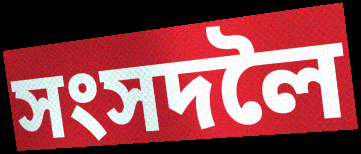
সংসদলৈ